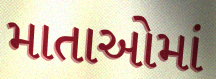
માતાઓમાં